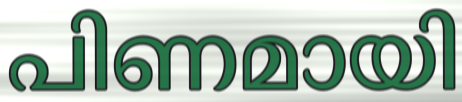
പിണമായി